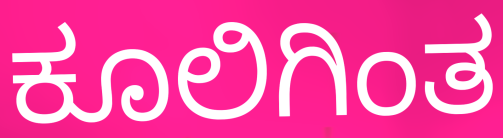
ಕೂಲಿಗಿಂತ